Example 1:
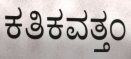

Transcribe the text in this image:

ಕತಿಕವತ್ತಂ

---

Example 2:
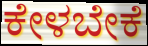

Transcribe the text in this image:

ಕೇಳಬೇಕೆ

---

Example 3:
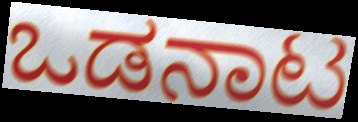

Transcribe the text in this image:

ಒಡನಾಟ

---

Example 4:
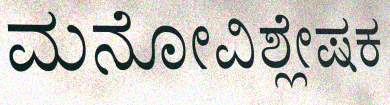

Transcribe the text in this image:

ಮನೋವಿಶ್ಲೇಷಕ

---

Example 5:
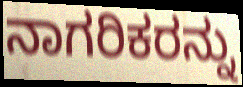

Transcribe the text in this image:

ನಾಗರಿಕರನ್ನು